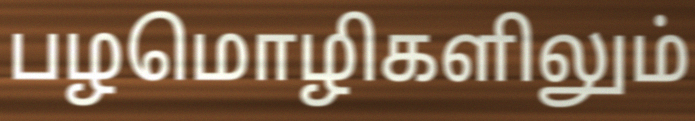
பழமொழிகளிலும்